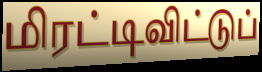
மிரட்டிவிட்டுப்